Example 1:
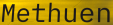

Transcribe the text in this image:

Methuen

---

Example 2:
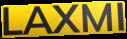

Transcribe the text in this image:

LAXMI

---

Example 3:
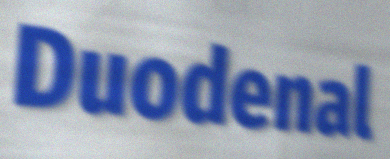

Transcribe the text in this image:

Duodenal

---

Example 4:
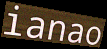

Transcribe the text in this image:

ianao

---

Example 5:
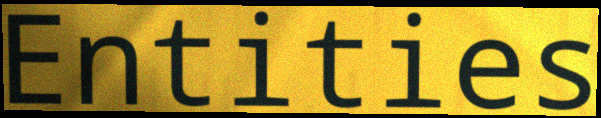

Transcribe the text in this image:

Entities